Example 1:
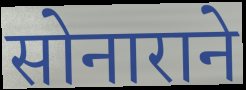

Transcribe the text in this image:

सोनाराने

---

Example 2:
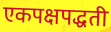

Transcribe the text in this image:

एकपक्षपद्धती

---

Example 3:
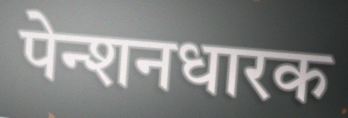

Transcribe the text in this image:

पेन्शनधारक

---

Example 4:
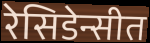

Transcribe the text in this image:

रेसिडेन्सीत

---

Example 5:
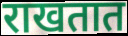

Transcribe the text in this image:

राखतात